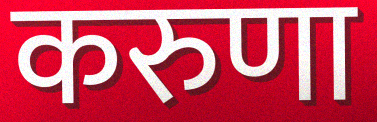
करुणा